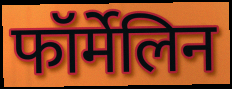
फॉर्मेलिन